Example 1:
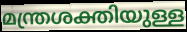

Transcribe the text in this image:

മന്ത്രശക്തിയുള്ള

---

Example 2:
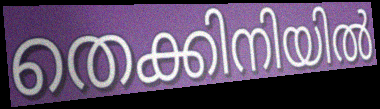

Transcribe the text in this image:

തെക്കിനിയിൽ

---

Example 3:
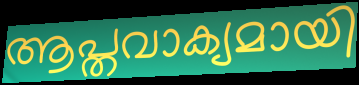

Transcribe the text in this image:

ആപ്തവാക്യമായി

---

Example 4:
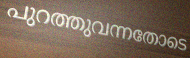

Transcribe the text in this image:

പുറത്തുവന്നതോടെ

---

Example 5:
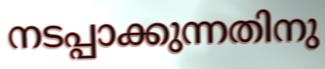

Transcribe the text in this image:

നടപ്പാക്കുന്നതിനു